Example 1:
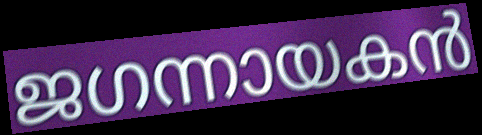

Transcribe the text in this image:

ജഗന്നായകൻ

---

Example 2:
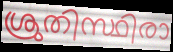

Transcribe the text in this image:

ശ്രുതിസ്ഥിരാ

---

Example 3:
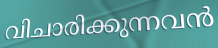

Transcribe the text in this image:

വിചാരിക്കുന്നവൻ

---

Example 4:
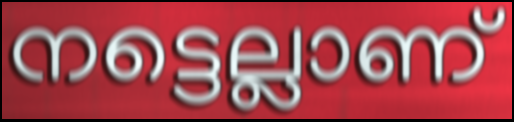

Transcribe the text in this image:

നട്ടെല്ലാണ്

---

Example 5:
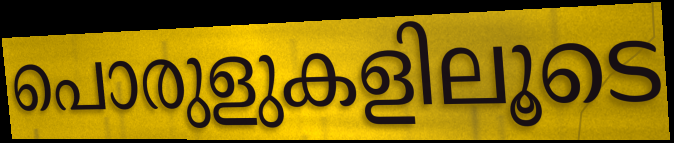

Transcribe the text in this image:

പൊരുളുകളിലൂടെ